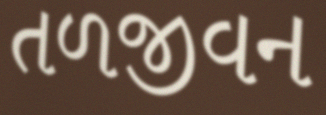
તળજીવન